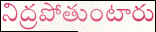
నిద్రపోతుంటారు